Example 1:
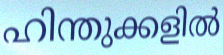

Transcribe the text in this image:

ഹിന്തുക്കളിൽ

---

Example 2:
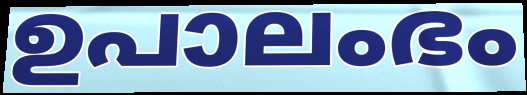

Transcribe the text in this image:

ഉപാലംഭം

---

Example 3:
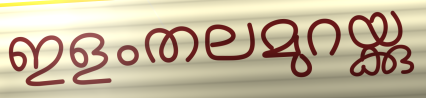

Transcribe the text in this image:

ഇളംതലമുറയ്ക്കു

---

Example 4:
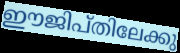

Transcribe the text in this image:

ഈജിപ്തിലേക്കു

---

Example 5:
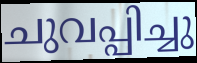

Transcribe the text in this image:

ചുവപ്പിച്ചു